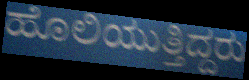
ಹೊಲಿಯುತ್ತಿದ್ದರು